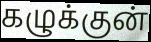
கழுக்குன்